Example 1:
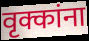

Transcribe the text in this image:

वृक्कांना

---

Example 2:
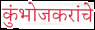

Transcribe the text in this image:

कुंभोजकरांचे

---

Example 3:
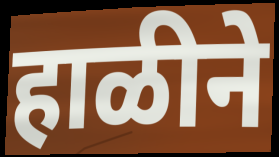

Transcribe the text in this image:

हाळीने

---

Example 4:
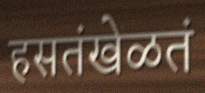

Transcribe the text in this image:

हसतंखेळतं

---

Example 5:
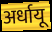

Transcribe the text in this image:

अर्धायू